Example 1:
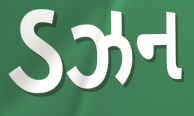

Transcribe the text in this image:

ડઝન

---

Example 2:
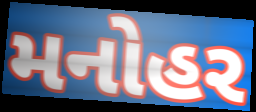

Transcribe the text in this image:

મનોહર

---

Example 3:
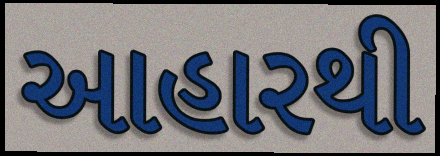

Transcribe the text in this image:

આહારથી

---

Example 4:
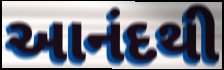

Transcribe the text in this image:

આનંદથી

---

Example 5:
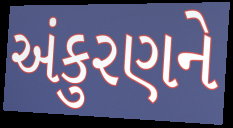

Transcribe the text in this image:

અંકુરણને